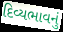
દિવ્યભાવનું